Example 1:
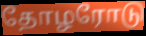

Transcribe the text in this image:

தோழரோடு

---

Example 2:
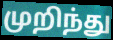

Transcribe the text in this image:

முறிந்து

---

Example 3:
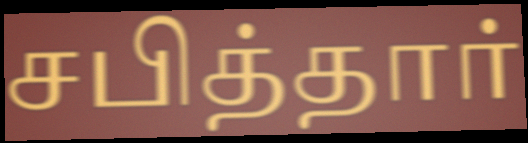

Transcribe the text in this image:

சபித்தார்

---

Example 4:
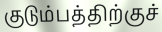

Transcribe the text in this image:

குடும்பத்திற்குச்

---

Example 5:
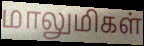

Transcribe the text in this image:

மாலுமிகள்